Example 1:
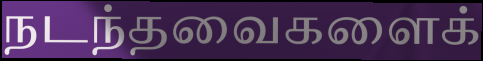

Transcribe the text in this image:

நடந்தவைகளைக்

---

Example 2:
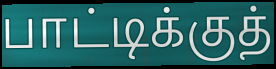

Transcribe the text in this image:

பாட்டிக்குத்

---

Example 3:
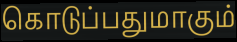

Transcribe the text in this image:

கொடுப்பதுமாகும்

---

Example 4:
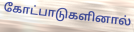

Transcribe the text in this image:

கோட்பாடுகளினால்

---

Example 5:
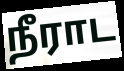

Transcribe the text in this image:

நீராட